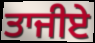
ਤਾਜੀਏ